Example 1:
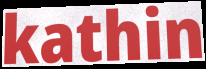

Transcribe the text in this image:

kathin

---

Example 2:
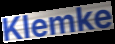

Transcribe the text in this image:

Klemke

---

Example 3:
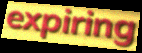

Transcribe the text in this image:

expiring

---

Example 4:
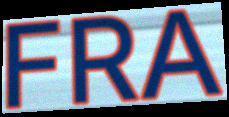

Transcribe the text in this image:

FRA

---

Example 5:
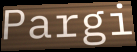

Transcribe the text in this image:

Pargi